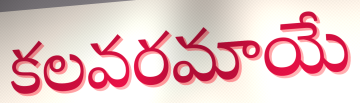
కలవరమాయే